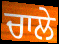
ਚਾਲੇ